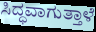
ಸಿದ್ಧವಾಗುತ್ತಾಳೆ